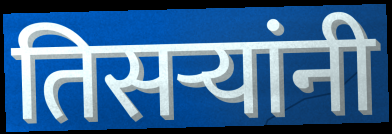
तिसऱ्यांनी